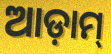
ଆଡ଼ାମ୍